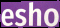
esho